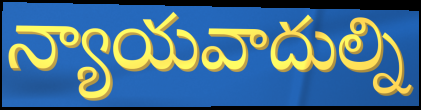
న్యాయవాదుల్ని